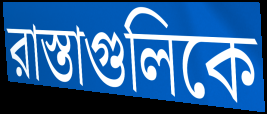
রাস্তাগুলিকে